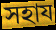
সহায